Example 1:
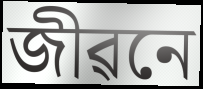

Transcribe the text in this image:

জীৱনে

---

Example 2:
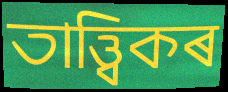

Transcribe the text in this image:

তাত্ত্বিকৰ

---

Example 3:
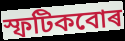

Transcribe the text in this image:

স্ফটিকবোৰ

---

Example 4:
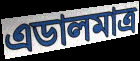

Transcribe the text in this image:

এডালমাত্ৰ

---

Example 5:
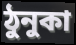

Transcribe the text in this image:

ঠুনুকা